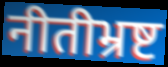
नीतीभ्रष्ट